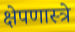
क्षेपणास्त्रे